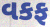
વકફ